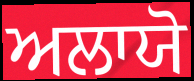
ਅਲਾਯੋ